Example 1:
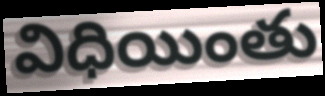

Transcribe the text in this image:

విధియింతు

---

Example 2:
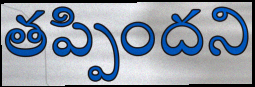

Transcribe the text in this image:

తప్పిందని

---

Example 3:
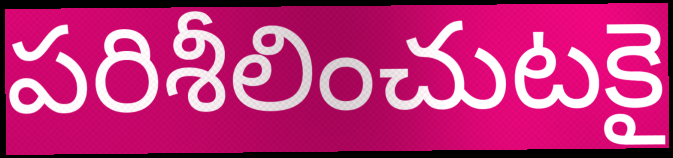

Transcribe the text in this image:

పరిశీలించుటకై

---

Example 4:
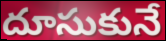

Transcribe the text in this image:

దూసుకునే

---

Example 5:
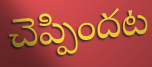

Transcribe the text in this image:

చెప్పిందట